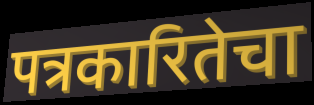
पत्रकारितेचा